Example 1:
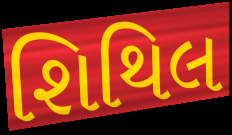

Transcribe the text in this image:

શિથિલ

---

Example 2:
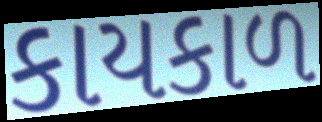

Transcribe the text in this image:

કાયકાળ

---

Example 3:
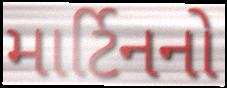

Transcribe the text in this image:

માર્ટિનનો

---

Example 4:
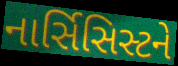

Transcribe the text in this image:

નાર્સિસિસ્ટને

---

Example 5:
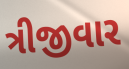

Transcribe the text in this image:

ત્રીજીવાર